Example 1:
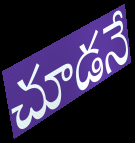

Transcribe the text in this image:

చూడనే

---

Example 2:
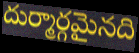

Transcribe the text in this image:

దుర్మార్గమైనది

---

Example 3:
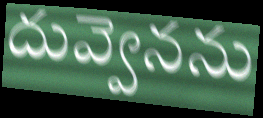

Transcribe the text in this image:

దువ్వెనను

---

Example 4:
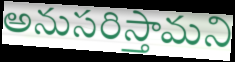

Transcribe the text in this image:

అనుసరిస్తామని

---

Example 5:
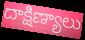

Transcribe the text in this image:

దాక్షిణ్యాలు